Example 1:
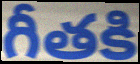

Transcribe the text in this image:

గీతకి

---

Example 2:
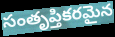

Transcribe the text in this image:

సంతృప్తికరమైన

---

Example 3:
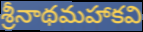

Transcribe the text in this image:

శ్రీనాథమహాకవి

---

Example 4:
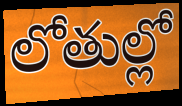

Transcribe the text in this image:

లోతుల్లో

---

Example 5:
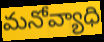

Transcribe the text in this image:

మనోవ్యాధి